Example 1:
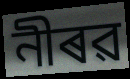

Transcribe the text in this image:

নীৰৱ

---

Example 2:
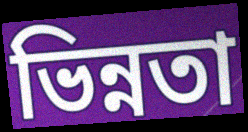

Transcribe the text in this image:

ভিন্নতা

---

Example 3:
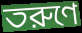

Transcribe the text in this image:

তৰুণে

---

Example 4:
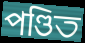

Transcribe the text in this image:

পণ্ডিত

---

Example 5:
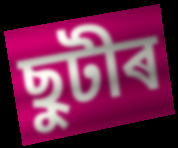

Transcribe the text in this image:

ছুটীৰ